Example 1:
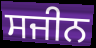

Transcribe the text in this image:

ਸਜੀਨ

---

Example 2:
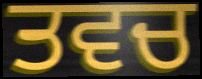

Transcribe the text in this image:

ਤਵਚ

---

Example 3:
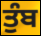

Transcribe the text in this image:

ਤੁੰਬ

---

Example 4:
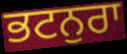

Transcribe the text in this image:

ਭਟਨੁਰਾ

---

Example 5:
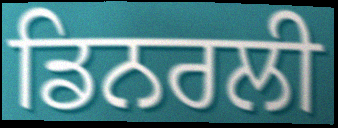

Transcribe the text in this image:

ਡਿਨਰਲੀ